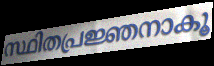
സ്ഥിതപ്രജ്ഞനാകൂ